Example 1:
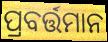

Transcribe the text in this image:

ପ୍ରବର୍ତ୍ତମାନ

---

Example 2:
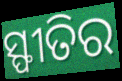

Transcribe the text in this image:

ସ୍ଫୀତିର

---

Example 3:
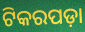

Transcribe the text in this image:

ଟିକରପଡ଼ା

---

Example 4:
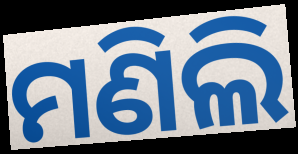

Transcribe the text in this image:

ମଣିଲି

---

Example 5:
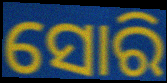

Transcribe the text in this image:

ସୋରି